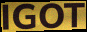
IGOT